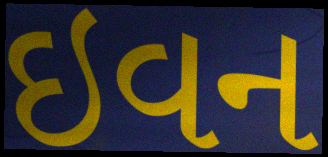
ઇવન